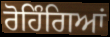
ਰੋਹਿੰਗਿਆਂ